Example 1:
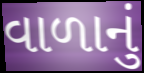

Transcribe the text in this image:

વાળાનું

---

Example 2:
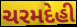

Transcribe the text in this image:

ચરમદેહી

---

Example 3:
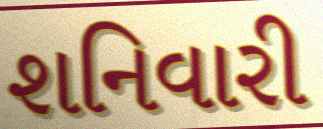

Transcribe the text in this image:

શનિવારી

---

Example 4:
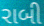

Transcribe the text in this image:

રાબી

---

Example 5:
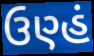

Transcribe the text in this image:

ઉણ્હં